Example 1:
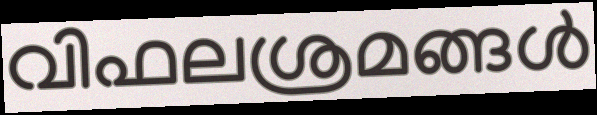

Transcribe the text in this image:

വിഫലശ്രമങ്ങൾ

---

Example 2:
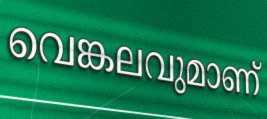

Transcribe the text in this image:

വെങ്കലവുമാണ്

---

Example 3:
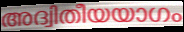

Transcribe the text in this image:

അദ്വിതീയയാഗം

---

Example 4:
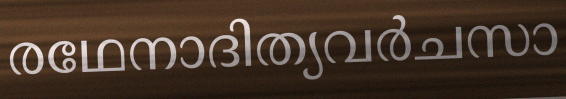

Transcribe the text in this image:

രഥേനാദിത്യവർചസാ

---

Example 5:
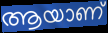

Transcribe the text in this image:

ആയാണ്